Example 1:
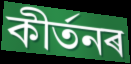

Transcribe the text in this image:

কীৰ্তনৰ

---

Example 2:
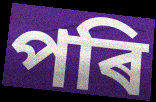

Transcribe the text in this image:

পৰি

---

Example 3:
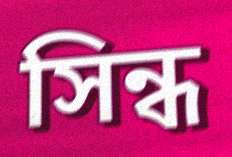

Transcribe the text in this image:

সিন্ধ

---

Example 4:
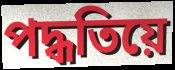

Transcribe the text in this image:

পদ্ধতিয়ে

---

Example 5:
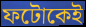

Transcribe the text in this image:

ফটোকেই